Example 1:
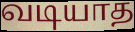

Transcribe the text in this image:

வடியாத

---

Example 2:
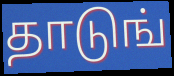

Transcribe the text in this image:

தாடுங்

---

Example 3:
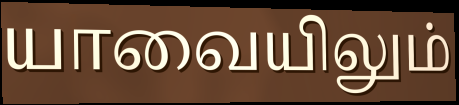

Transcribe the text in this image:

யாவையிலும்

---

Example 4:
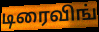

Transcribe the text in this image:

டிரைவிங்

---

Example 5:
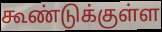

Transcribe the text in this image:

கூண்டுக்குள்ள